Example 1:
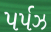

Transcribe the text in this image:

પર્પઝ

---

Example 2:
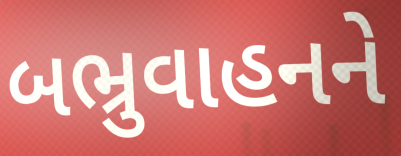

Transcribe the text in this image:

બભ્રુવાહનને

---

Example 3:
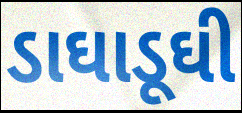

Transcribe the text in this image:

ડાઘાડૂઘી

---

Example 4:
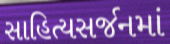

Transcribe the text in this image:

સાહિત્યસર્જનમાં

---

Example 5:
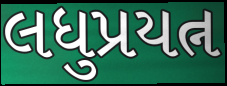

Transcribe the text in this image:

લધુપ્રયત્ન